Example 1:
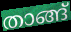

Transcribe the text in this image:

താങ്ങ്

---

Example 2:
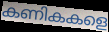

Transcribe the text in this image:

കണികകളെ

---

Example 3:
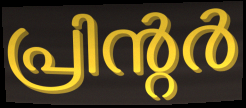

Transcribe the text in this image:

പ്രിന്റർ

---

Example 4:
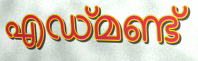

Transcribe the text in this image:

എഡ്മണ്ട്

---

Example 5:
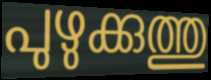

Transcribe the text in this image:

പുഴുക്കുത്തു